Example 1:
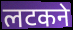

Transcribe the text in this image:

लटकने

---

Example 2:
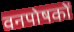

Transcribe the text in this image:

वनपोषकों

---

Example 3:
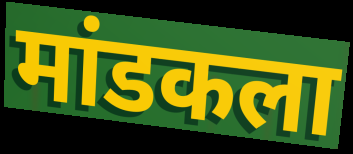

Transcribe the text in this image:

मांडकला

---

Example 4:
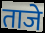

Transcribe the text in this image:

ताजे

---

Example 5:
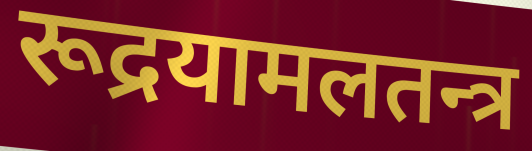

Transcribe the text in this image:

रूद्रयामलतन्त्र